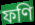
ফণি